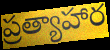
ప్రత్యాహార